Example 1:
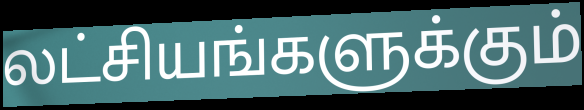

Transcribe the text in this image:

லட்சியங்களுக்கும்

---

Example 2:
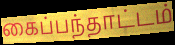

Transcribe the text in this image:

கைப்பந்தாட்டம்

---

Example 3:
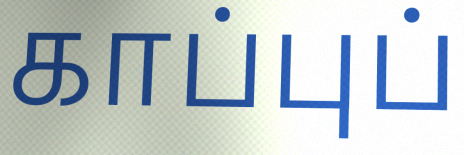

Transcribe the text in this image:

காப்புப்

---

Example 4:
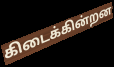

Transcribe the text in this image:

கிடைக்கின்றன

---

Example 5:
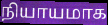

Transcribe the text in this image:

நியாயமாக